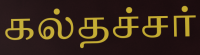
கல்தச்சர்